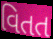
વિતત